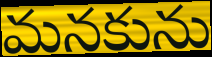
మనకును